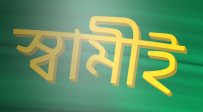
স্বামীই